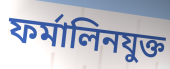
ফর্মালিনযুক্ত